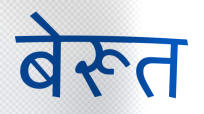
बेरूत